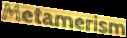
Metamerism